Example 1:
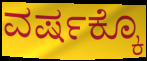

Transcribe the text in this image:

ವರ್ಷಕ್ಕೊ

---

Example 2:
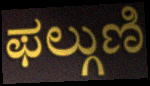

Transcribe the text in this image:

ಫಲ್ಗುಣಿ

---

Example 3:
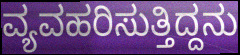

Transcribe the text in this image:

ವ್ಯವಹರಿಸುತ್ತಿದ್ದನು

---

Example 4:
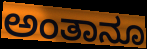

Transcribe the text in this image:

ಅಂತಾನೂ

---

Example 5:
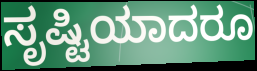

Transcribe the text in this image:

ಸೃಷ್ಟಿಯಾದರೂ